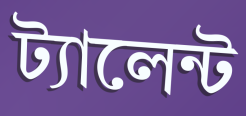
ট্যালেন্ট